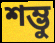
শম্ভু